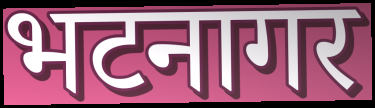
भटनागर